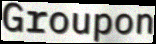
Groupon